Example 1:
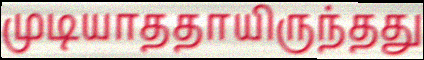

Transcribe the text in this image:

முடியாததாயிருந்தது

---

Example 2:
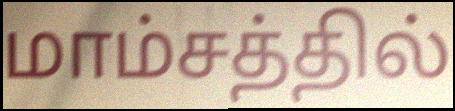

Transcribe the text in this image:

மாம்சத்தில்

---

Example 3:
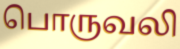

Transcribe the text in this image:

பொருவலி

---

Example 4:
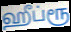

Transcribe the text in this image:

ஹீப்ரூ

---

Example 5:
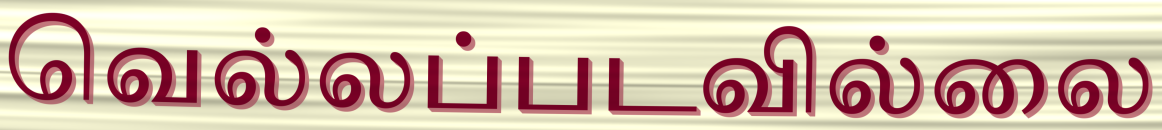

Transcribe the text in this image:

வெல்லப்படவில்லை